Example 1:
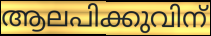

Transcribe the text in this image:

ആലപിക്കുവിന്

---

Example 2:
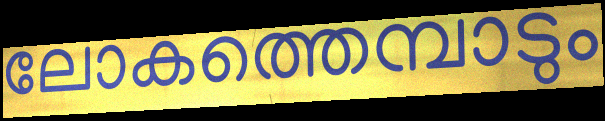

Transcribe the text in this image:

ലോകത്തെമ്പാടും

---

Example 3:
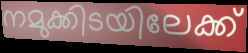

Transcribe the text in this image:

നമുക്കിടയിലേക്ക്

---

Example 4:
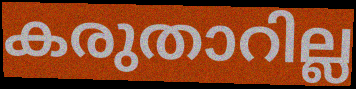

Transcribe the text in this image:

കരുതാറില്ല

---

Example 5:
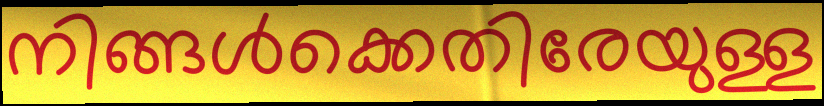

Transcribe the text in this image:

നിങ്ങൾക്കെതിരേയുള്ള